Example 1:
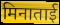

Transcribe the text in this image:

मिनाताई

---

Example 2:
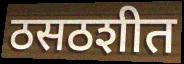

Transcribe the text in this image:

ठसठशीत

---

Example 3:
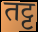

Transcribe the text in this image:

तट्ट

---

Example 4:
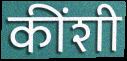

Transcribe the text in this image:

कींशी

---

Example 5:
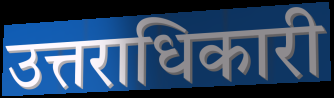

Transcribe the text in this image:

उत्तराधिकारी